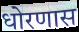
धोरणास